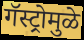
गॅस्ट्रोमुळे